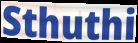
Sthuthi